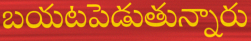
బయటపెడుతున్నారు